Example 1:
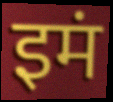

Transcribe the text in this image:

इमं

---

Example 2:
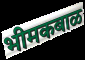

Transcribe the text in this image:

भीमकबाळ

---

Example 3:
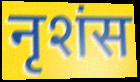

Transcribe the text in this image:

नृशंस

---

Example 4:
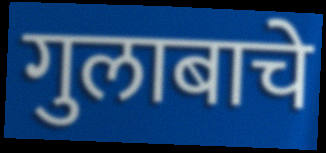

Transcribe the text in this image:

गुलाबाचे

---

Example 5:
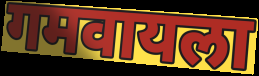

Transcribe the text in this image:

गमवायला